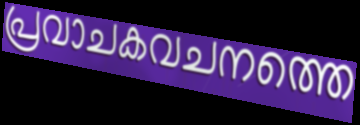
പ്രവാചകവചനത്തെ